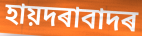
হায়দৰাবাদৰ